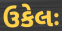
ઉકેલઃ